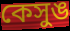
কেসুঙ